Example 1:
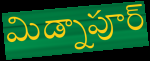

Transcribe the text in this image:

మిడ్నాపూర్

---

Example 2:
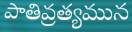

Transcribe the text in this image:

పాతివ్రత్యమున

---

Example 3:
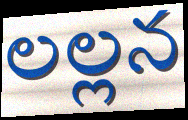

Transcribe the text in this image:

లల్లన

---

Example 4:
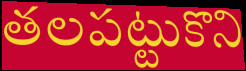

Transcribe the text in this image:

తలపట్టుకొని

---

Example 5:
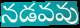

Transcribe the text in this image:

నడవవు